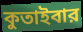
কুতাইবার